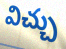
విచ్చు